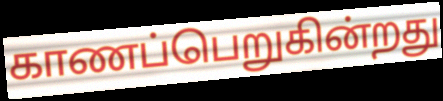
காணப்பெறுகின்றது